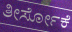
ತೀರ್ಸೋಕೆ